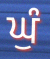
ਘੁੰ